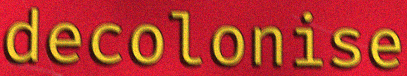
decolonise